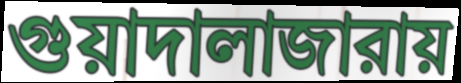
গুয়াদালাজারায়